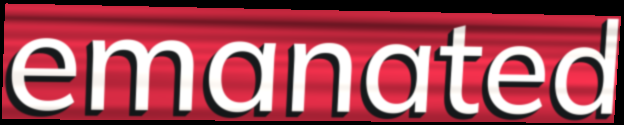
emanated